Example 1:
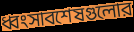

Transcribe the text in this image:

ধ্বংসাবশেষগুলোর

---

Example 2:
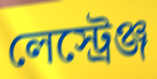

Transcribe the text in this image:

লেস্ট্রেঞ্জ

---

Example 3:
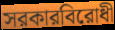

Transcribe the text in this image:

সরকারবিরোধী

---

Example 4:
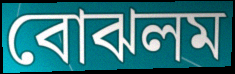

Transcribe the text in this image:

বোঝলম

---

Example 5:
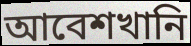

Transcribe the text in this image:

আবেশখানি